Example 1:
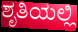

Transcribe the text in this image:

ಶೃತಿಯಲ್ಲಿ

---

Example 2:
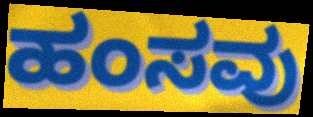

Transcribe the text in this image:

ಹಂಸವು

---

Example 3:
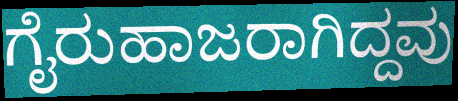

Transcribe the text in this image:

ಗೈರುಹಾಜರಾಗಿದ್ದವು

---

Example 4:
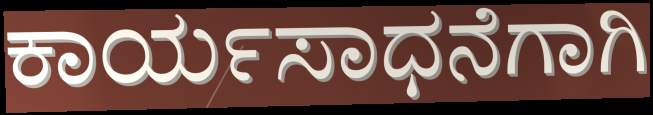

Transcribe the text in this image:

ಕಾರ್ಯಸಾಧನೆಗಾಗಿ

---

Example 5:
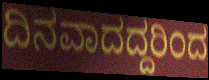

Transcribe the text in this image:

ದಿನವಾದದ್ದರಿಂದ